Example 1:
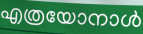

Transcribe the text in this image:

എത്രയോനാൾ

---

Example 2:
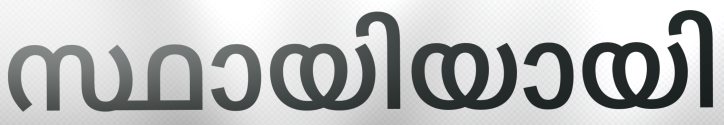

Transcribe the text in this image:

സ്ഥായിയായി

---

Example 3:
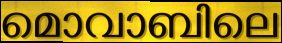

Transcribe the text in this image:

മൊവാബിലെ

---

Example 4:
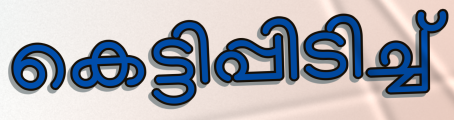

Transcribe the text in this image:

കെട്ടിപ്പിടിച്ച്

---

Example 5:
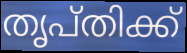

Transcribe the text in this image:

തൃപ്തിക്ക്